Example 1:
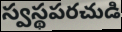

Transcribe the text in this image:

స్వస్థపరచుడి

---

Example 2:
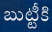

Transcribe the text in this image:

బుట్టీకి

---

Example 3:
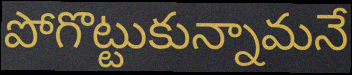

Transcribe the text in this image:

పోగొట్టుకున్నామనే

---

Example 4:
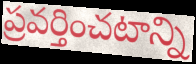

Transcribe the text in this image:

ప్రవర్తించటాన్ని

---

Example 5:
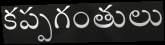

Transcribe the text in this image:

కప్పగంతులు